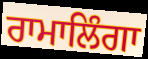
ਰਾਮਾਲਿੰਗਾ